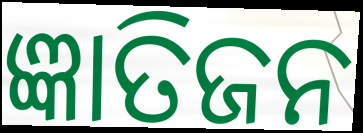
ଜ୍ଞାତିଜନ